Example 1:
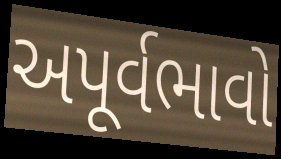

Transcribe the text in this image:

અપૂર્વભાવો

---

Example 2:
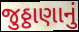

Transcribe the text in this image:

જુઠ્ઠાણાનું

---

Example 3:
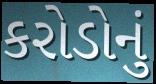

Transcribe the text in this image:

કરોડોનું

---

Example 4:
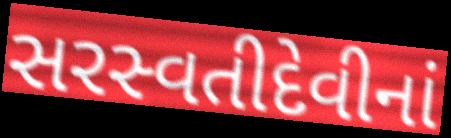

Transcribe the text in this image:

સરસ્વતીદેવીનાં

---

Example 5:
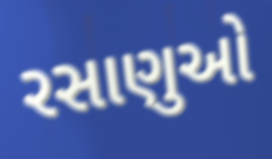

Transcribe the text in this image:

રસાણુઓ